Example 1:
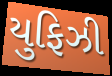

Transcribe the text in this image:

યુફિઝી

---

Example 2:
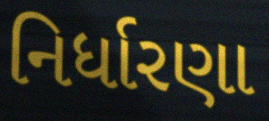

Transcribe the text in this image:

નિર્ધારણા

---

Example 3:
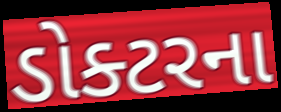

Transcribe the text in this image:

ડોક્ટરના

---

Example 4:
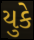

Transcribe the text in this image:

યુકે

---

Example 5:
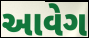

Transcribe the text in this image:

આવેગ